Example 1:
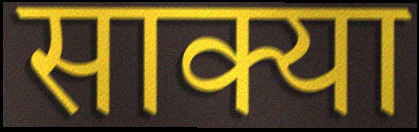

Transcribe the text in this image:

साक्या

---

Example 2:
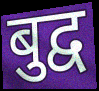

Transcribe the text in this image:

बुद्व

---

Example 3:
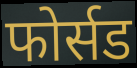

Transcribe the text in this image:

फोर्सड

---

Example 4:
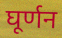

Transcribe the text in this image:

घूर्णन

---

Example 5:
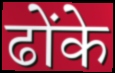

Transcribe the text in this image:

ढोंके